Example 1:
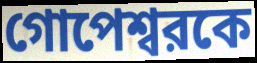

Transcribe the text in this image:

গোপেশ্বরকে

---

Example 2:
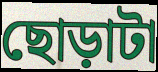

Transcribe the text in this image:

ছোড়াটা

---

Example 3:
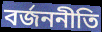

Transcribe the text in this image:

বর্জননীতি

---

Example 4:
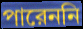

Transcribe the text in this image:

পারেননি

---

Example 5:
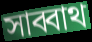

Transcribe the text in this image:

সাব্বাথ